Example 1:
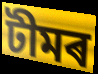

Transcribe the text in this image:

টীমৰ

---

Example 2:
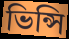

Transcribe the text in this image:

ভিন্সি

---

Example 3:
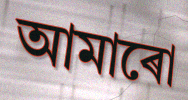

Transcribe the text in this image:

আমাৰো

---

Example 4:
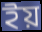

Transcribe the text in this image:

ইয়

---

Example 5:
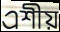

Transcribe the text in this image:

এশীয়